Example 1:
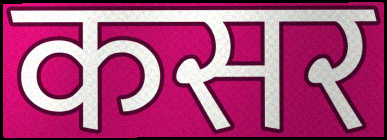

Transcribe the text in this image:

कसर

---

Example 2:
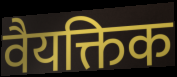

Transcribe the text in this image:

वैयक्तिक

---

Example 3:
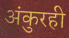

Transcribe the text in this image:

अंकुरही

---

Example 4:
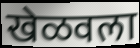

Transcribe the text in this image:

खेळवला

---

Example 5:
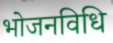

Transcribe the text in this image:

भोजनविधि